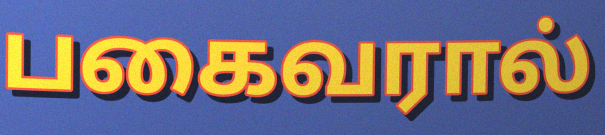
பகைவரால்